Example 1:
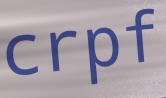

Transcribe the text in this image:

crpf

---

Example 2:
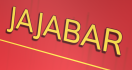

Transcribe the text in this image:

JAJABAR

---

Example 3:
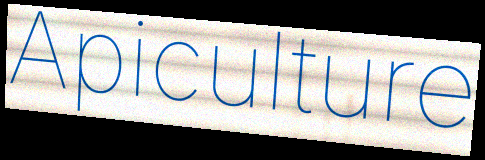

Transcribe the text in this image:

Apiculture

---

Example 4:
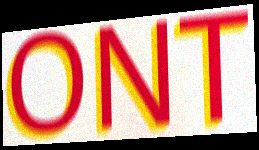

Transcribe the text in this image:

ONT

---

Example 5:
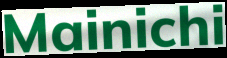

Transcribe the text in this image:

Mainichi